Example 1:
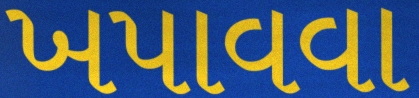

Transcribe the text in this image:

ખપાવવા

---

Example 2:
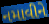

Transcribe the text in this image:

નમાવીને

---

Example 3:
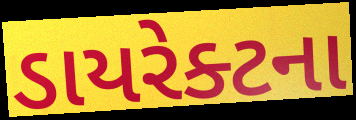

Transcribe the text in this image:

ડાયરેક્ટના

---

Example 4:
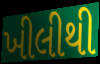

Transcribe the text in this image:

ખીલીથી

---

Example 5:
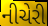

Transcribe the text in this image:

નીચેરી